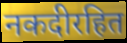
नकदीरहित